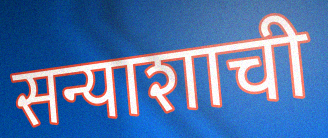
सन्याशाची